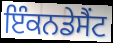
ਇੰਕਨਡੇਸੈਂਟ